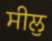
ਸੀਲੁ